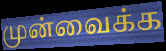
முன்வைக்க